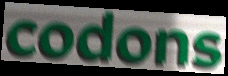
codons